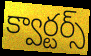
క్వార్టర్స్